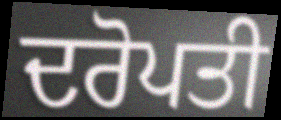
ਦਰੋਪਤੀ